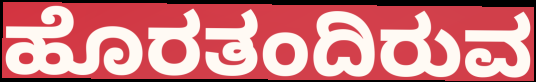
ಹೊರತಂದಿರುವ